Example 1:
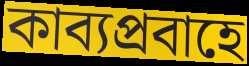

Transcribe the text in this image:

কাব্যপ্রবাহে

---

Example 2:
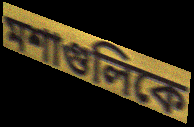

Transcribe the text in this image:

মশাগুলিকে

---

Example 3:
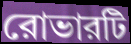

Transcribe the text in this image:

রোভারটি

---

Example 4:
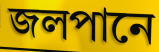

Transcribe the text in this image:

জলপানে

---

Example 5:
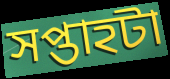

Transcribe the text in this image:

সপ্তাহটা